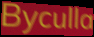
Byculla